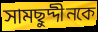
সামছুদ্দীনকে